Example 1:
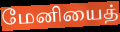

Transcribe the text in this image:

மேனியைத்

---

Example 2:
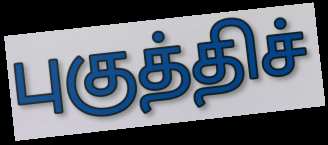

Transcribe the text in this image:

புகுத்திச்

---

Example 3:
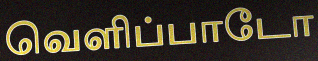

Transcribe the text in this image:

வெளிப்பாடோ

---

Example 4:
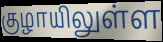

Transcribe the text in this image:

குழாயிலுள்ள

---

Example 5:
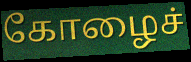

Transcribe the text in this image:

கோழைச்